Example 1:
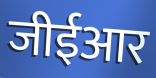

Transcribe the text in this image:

जीईआर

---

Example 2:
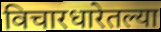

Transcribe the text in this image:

विचारधारेतल्या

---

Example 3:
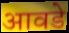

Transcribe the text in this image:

आवडे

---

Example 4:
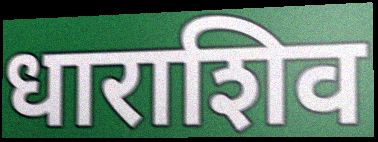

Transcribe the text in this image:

धाराशिव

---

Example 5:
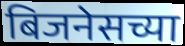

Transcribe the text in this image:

बिजनेसच्या